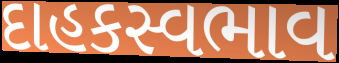
દાહકસ્વભાવ